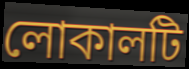
লোকালটি